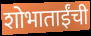
शोभाताईंची